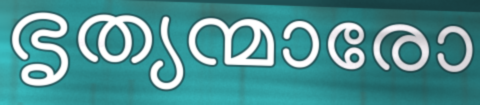
ഭൃത്യന്മാരോ